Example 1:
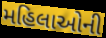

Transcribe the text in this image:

મહિલાઓની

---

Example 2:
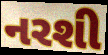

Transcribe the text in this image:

નરશી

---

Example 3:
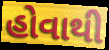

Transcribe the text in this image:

હોવાથી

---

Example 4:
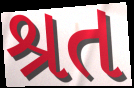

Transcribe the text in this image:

શ્રત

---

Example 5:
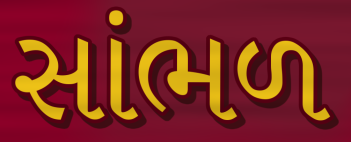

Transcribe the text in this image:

સાંભળ